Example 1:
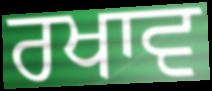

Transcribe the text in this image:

ਰਖਾਵ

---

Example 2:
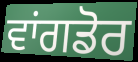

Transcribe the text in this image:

ਵਾਂਗਡੋਰ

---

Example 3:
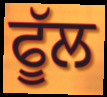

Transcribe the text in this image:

ਫੂੱਲ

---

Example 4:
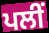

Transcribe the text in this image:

ਪਲੀਂ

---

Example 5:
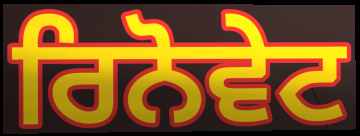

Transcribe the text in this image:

ਰਿਨੋਵੇਟ